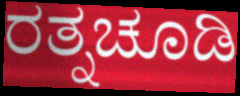
ರತ್ನಚೂಡಿ